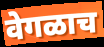
वेगळाच